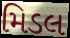
મિડલ